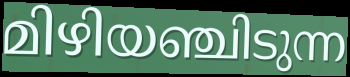
മിഴിയഞ്ചിടുന്ന